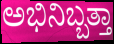
ಅಭಿನಿಬ್ಬತ್ತಾ